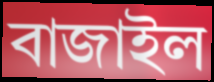
বাজাইল